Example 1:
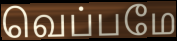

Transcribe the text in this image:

வெப்பமே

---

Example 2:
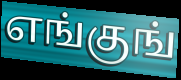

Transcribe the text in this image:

எங்குங்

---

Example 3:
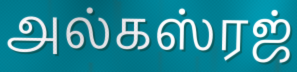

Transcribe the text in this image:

அல்கஸ்ரஜ்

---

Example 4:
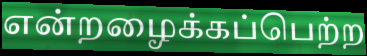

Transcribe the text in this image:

என்றழைக்கப்பெற்ற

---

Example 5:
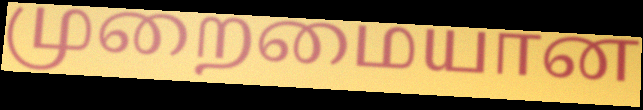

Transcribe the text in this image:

முறைமையான